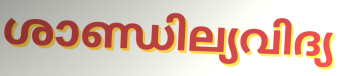
ശാണ്ഡില്യവിദ്യ